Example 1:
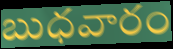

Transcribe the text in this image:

బుధవారం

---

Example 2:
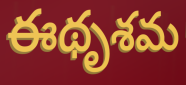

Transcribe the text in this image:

ఈథృశమ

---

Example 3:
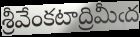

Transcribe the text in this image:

శ్రీవేంకటాద్రిమీఁద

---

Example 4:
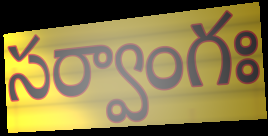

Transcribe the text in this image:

సర్వాంగః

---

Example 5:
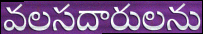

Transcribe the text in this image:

వలసదారులను